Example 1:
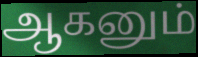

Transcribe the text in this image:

ஆகனும்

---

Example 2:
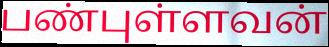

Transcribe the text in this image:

பண்புள்ளவன்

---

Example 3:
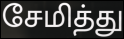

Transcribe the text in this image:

சேமித்து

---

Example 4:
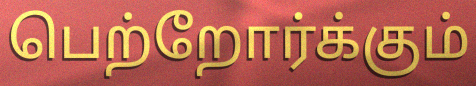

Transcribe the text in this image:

பெற்றோர்க்கும்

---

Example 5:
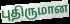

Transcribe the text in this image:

புதிருமான